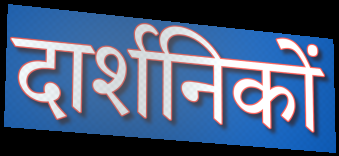
दार्शनिकों